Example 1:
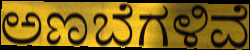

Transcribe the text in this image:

ಅಣಬೆಗಳಿವೆ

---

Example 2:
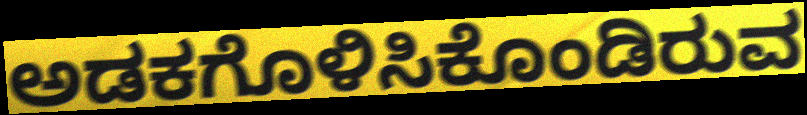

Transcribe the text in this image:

ಅಡಕಗೊಳಿಸಿಕೊಂಡಿರುವ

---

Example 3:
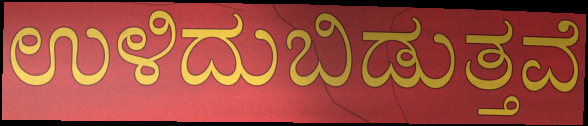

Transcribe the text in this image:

ಉಳಿದುಬಿಡುತ್ತವೆ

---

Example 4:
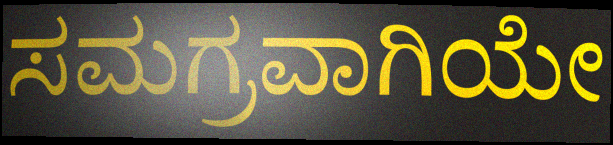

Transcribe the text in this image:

ಸಮಗ್ರವಾಗಿಯೇ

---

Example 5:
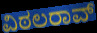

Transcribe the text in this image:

ವಿಠಲರಾವ್